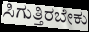
ಸಿಗುತ್ತಿರಬೇಕು